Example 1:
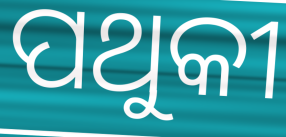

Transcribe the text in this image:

ପଥୁକୀ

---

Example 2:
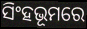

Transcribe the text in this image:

ସିଂହଭୂମରେ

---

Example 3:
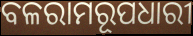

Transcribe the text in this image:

ବଳରାମରୂପଧାରୀ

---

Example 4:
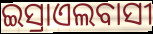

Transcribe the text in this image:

ଇସ୍ରାଏଲବାସୀ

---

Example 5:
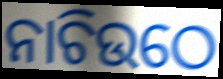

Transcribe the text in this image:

ନାଚିଉଠେ